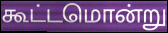
கூட்டமொன்று